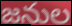
జనుల